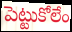
పెట్టుకోలేం